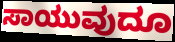
ಸಾಯುವುದೂ